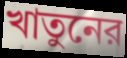
খাতুনের